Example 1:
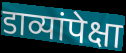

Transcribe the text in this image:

डाव्यांपेक्षा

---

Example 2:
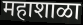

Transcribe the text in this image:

महाशाळा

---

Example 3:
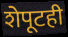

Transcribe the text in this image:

शेपूटही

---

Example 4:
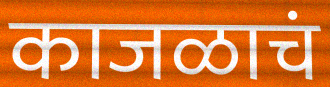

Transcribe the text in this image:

काजळाचं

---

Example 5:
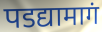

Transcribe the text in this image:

पडद्यामागं